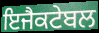
ਇਜੈਕਟੇਬਲ